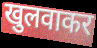
खुलवाकर